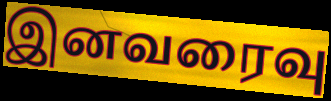
இனவரைவு